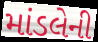
માંડલેની